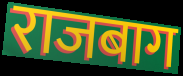
राजबाग